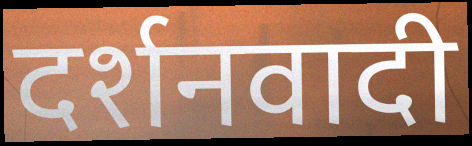
दर्शनवादी